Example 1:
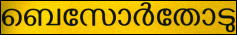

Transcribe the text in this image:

ബെസോർതോടു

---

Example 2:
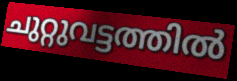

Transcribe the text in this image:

ചുറ്റുവട്ടത്തിൽ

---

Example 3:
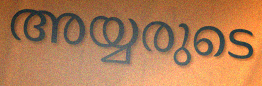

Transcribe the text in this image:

അയ്യരുടെ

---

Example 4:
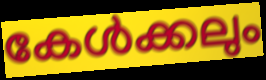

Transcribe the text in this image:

കേൾക്കലും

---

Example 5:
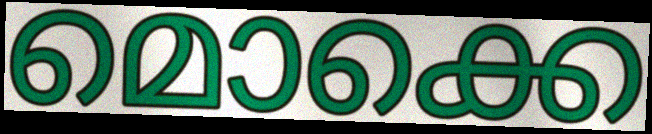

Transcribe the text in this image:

മൊക്കെ